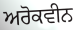
ਅਰੋਕਵੀਨ